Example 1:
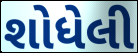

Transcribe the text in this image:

શોધેલી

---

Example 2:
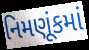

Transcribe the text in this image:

નિમણૂંકમાં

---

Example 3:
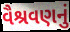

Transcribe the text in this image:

વૈશ્રવણનું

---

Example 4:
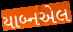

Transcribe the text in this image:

યાબ્નએલ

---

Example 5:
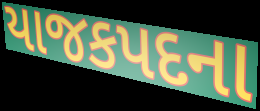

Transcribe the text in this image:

યાજકપદના